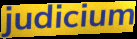
judicium